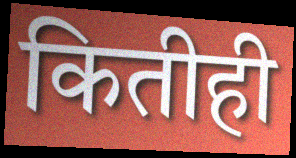
कितीही